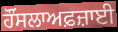
ਹੌਂਸਲਾਅਫ਼ਜ਼ਾਈ